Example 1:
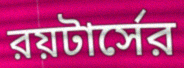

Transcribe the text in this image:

রয়টার্সের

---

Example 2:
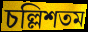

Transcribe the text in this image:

চল্লিশতম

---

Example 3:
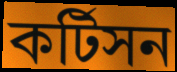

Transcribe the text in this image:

কর্টিসন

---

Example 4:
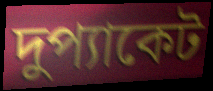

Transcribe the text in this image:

দুপ্যাকেট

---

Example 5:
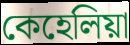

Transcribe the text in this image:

কেহেলিয়া